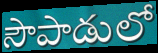
సౌపాడులో